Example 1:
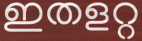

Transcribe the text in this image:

ഇതളറ്റ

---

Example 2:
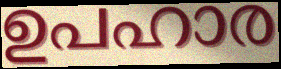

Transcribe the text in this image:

ഉപഹാര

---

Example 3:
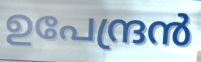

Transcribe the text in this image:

ഉപേന്ദ്രൻ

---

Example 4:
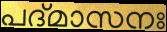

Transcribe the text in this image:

പദ്മാസനഃ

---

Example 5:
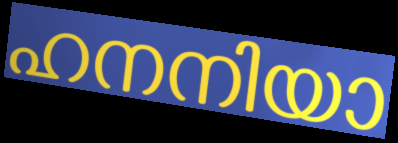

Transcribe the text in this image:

ഹനനിയാ